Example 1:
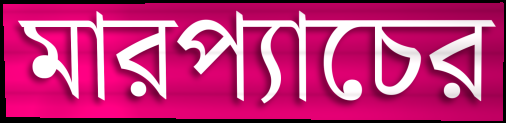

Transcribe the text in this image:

মারপ্যাচের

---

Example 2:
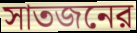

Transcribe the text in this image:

সাতজনের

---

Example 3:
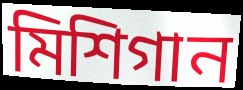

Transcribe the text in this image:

মিশিগান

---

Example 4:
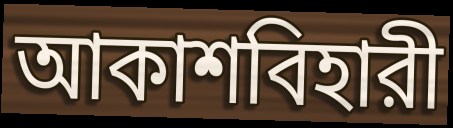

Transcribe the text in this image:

আকাশবিহারী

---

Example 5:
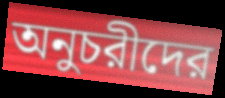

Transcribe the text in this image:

অনুচরীদের